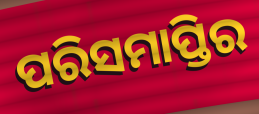
ପରିସମାପ୍ତିର